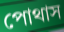
পোথাস